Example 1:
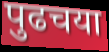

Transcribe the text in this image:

पुढचया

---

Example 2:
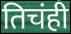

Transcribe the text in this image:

तिचंही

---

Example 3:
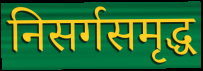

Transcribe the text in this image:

निसर्गसमृद्ध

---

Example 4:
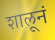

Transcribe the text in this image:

शालूनं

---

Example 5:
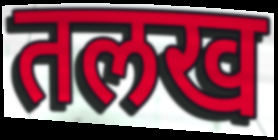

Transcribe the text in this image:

तलख